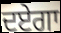
ਦਏਗਾ